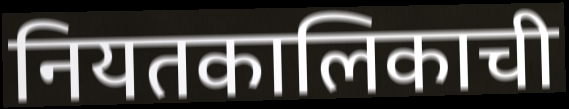
नियतकालिकाची